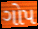
ગોપ